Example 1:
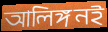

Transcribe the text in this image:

আলিঙ্গনই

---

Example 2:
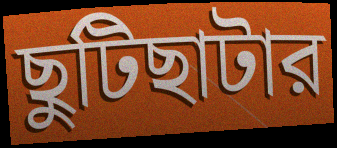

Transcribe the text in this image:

ছুটিছাটার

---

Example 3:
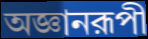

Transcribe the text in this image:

অজ্ঞানরূপী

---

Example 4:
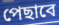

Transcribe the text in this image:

পেছাবে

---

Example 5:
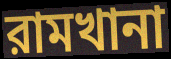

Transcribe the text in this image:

রামখানা